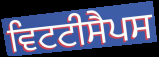
ਵਿਟਟੀਸੈਪਸ